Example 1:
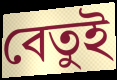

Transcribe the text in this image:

বেতুই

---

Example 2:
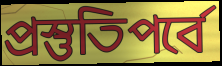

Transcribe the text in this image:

প্রস্তুতিপর্বে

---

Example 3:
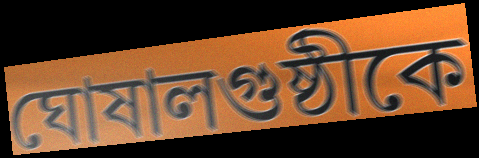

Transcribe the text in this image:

ঘোষালগুষ্ঠীকে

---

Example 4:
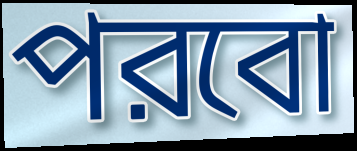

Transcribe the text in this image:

পরবো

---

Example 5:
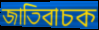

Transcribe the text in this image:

জাতিবাচক